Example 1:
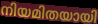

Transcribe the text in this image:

നിയമിതയായി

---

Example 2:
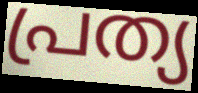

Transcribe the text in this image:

പ്രത്യ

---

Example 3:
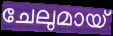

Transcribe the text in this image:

ചേലുമായ്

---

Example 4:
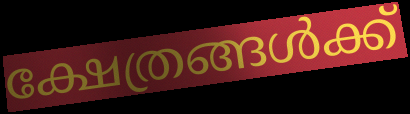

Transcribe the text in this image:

ക്ഷേത്രങ്ങൾക്ക്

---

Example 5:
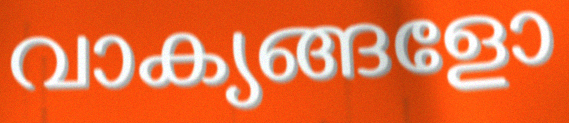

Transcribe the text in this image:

വാക്യങ്ങളോ